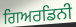
ਗਿਅਰਡਿਨੀ